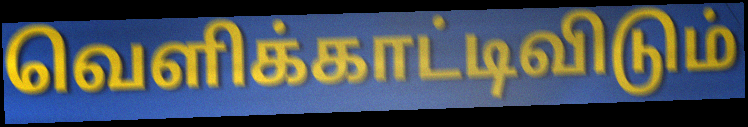
வெளிக்காட்டிவிடும்